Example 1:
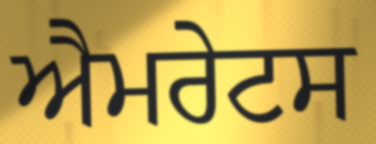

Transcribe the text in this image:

ਐਮਰੇਟਸ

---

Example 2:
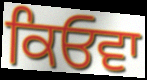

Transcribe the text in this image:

ਕਿਓਵਾ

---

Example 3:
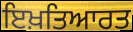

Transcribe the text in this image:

ਇਖ਼ਤਿਆਰਤ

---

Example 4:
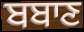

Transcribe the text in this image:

ਬਬਾਣ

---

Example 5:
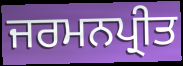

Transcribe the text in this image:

ਜਰਮਨਪ੍ਰੀਤ